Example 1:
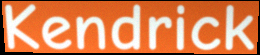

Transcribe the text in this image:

Kendrick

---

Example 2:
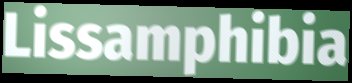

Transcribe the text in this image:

Lissamphibia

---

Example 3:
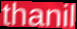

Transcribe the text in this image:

thanil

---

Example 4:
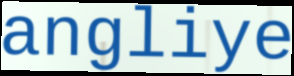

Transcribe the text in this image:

angliye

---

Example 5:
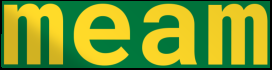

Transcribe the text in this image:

meam